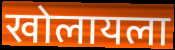
खोलायला